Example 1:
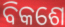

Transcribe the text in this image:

ବିକଶେ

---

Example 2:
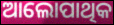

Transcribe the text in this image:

ଆଲୋପାଥିକ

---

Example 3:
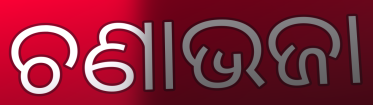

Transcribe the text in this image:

ଚଣାଭଜା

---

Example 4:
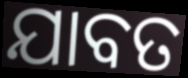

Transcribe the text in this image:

ଯାବତ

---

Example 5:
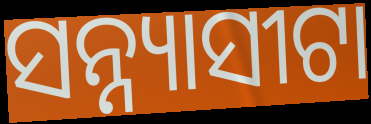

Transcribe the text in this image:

ସନ୍ନ୍ୟାସୀଟା